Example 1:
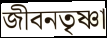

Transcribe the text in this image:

জীবনতৃষ্ণা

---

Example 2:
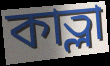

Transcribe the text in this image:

কাত্লা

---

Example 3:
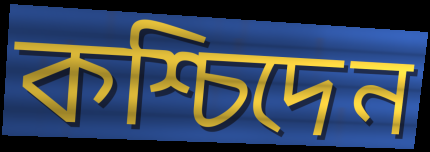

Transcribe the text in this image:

কশ্চিদেন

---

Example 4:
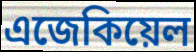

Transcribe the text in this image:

এজেকিয়েল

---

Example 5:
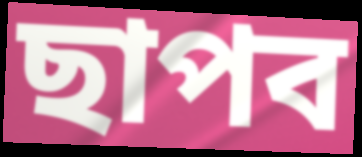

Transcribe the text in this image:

ছাপব